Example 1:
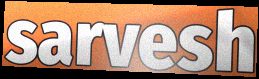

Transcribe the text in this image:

sarvesh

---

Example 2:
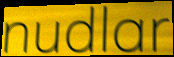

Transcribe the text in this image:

nudlar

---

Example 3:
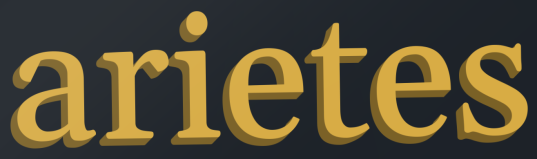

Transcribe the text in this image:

arietes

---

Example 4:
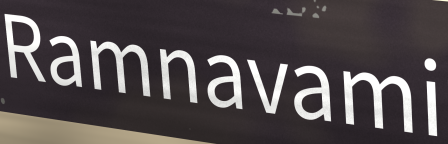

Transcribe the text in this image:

Ramnavami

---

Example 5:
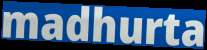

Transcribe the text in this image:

madhurta